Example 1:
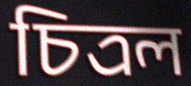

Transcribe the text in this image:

চিত্রল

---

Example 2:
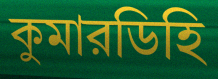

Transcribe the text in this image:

কুমারডিহি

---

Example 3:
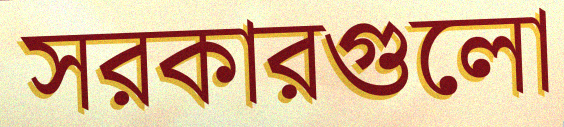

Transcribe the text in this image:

সরকারগুলো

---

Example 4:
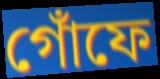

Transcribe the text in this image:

গোঁফে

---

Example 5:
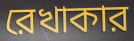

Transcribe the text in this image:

রেখাকার